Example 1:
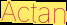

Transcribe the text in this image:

Actan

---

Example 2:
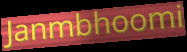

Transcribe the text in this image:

Janmbhoomi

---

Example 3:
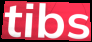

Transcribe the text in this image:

tibs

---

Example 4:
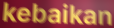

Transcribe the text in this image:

kebaikan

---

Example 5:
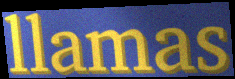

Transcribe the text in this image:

llamas